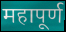
महापूर्ण